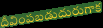
దీవింపబడుదురుగాక